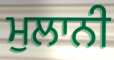
ਮੁਲਾਨੀ